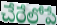
చేరేలోపే